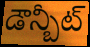
డౌన్బీట్